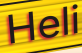
Heli